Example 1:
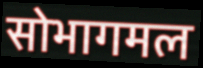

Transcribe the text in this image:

सोभागमल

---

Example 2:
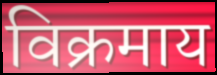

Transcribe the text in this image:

विक्रमाय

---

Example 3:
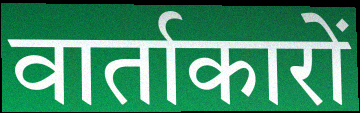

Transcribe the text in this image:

वार्ताकारों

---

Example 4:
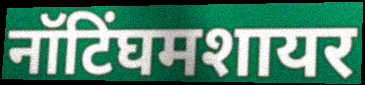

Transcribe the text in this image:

नॉटिंघमशायर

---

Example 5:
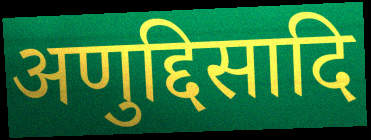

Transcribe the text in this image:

अणुद्दिसादि